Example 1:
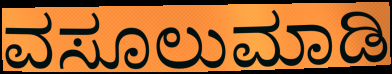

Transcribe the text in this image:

ವಸೂಲುಮಾಡಿ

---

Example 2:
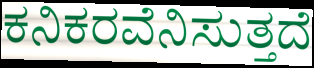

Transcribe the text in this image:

ಕನಿಕರವೆನಿಸುತ್ತದೆ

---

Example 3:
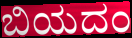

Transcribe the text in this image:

ಬಿಯದಂ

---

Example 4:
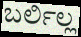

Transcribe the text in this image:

ಬರ್ಲಿಲ್ಲ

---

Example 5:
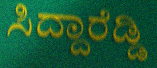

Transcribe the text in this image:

ಸಿದ್ದಾರೆಡ್ಡಿ